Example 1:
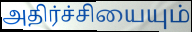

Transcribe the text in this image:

அதிர்ச்சியையும்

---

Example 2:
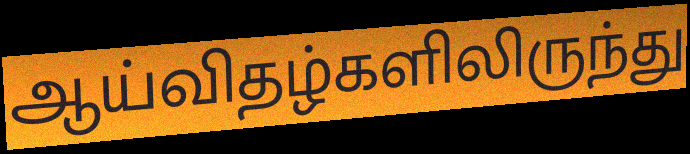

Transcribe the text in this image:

ஆய்விதழ்களிலிருந்து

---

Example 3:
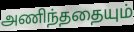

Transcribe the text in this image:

அணிந்ததையும்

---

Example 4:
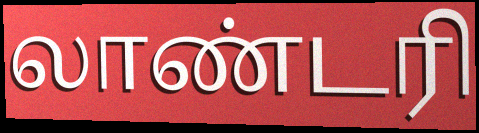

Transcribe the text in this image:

லாண்டரி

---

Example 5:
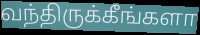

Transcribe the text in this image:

வந்திருக்கீங்களா